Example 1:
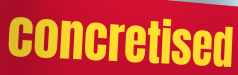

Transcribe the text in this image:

concretised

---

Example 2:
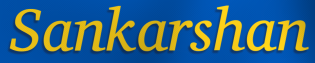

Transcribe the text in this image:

Sankarshan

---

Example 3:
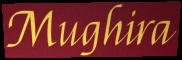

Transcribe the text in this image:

Mughira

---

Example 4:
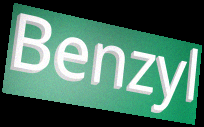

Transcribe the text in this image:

Benzyl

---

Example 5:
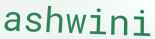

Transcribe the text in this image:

ashwini